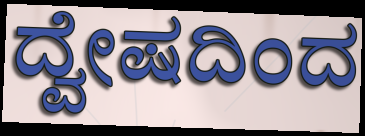
ದ್ವೇಷದಿಂದ